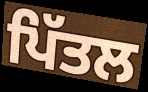
ਪਿੱਤਲ